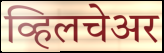
व्हिलचेअर